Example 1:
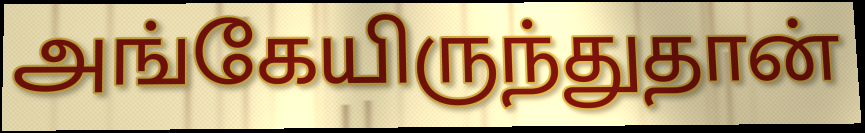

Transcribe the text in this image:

அங்கேயிருந்துதான்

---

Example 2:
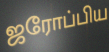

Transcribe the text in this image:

ஜரோப்பிய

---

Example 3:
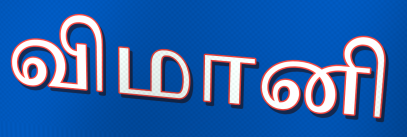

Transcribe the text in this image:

விமானி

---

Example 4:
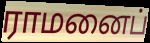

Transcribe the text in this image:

ராமனைப்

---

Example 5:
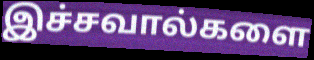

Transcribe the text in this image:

இச்சவால்களை